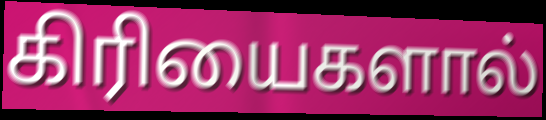
கிரியைகளால்